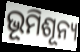
ଭୂମିଶୂନ୍ୟ